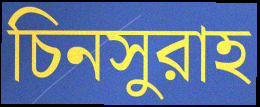
চিনসুরাহ